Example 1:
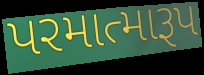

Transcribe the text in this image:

પરમાત્મારૂપ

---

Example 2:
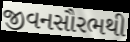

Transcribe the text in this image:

જીવનસૌરભથી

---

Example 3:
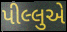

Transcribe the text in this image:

પીલ્લુએ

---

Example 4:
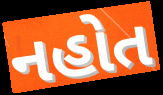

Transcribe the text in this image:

નહોત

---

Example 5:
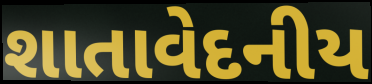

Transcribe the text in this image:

શાતાવેદનીય